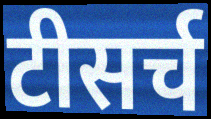
टीसर्च